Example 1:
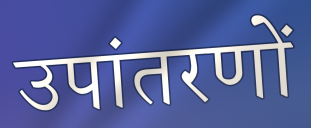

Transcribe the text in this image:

उपांतरणों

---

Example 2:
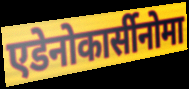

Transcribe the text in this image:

एडेनोकार्सीनोमा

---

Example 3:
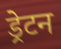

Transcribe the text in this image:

ड्रेटन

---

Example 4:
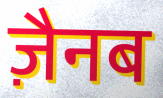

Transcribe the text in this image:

ज़ैनब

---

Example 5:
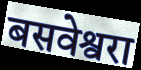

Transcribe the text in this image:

बसवेश्वरा